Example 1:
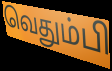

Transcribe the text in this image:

வெதும்பி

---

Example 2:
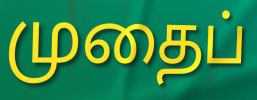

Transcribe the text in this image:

முதைப்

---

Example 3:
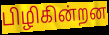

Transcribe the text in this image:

பிழிகின்றன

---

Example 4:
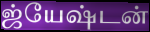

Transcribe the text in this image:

ஜ்யேஷ்டன்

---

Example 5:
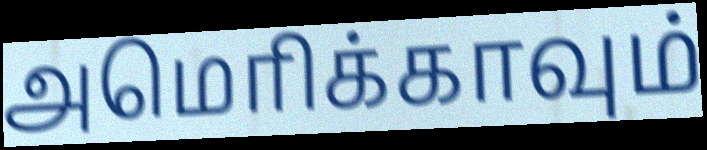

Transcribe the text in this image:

அமெரிக்காவும்